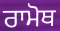
ਰਾਮੋਥ